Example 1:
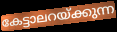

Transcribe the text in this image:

കേട്ടാലറയ്ക്കുന്ന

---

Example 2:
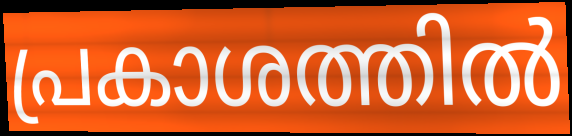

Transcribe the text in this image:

പ്രകാശത്തിൽ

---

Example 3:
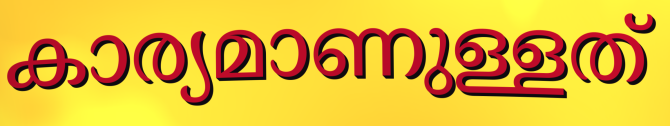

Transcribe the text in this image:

കാര്യമാണുള്ളത്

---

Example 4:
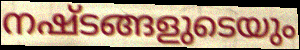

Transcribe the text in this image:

നഷ്ടങ്ങളുടെയും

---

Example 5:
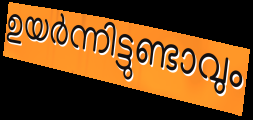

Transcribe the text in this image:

ഉയർന്നിട്ടുണ്ടാവും